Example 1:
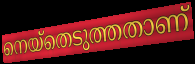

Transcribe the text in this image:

നെയ്തെടുത്തതാണ്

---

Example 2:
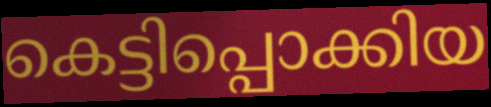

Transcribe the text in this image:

കെട്ടിപ്പൊക്കിയ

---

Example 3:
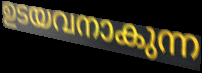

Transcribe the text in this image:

ഉടയവനാകുന്ന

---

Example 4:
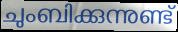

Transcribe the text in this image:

ചുംബിക്കുന്നുണ്ട്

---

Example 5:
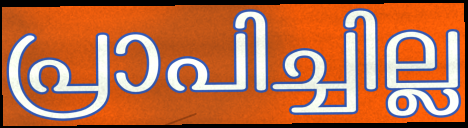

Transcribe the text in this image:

പ്രാപിച്ചില്ല